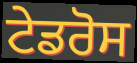
ਟੇਡਰੋਸ